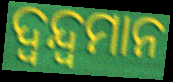
ଦ୍ଵନ୍ଦ୍ଵମାନ